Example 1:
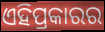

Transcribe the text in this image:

ଏହିପ୍ରକାରର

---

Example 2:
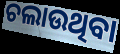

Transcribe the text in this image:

ଚଲାଉଥିବା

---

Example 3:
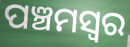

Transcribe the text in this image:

ପଞ୍ଚମସ୍ଵର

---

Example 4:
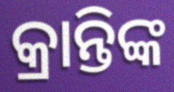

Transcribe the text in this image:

କ୍ରାନ୍ତିଙ୍କ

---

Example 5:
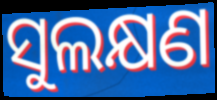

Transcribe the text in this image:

ସୁଲକ୍ଷଣ